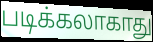
படிக்கலாகாது